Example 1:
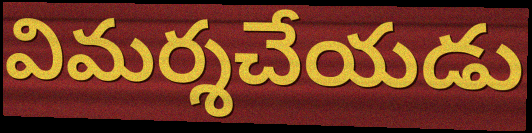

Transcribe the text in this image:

విమర్శచేయడు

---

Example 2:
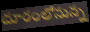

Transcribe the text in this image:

దూరంలోనున్న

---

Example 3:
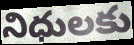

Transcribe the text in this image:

నిధులకు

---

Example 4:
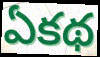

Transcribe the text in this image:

ఏకథ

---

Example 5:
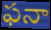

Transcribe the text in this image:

ఫనా